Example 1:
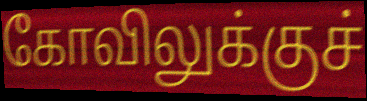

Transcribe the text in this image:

கோவிலுக்குச்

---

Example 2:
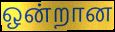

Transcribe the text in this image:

ஒன்றான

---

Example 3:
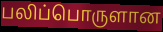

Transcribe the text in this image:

பலிப்பொருளான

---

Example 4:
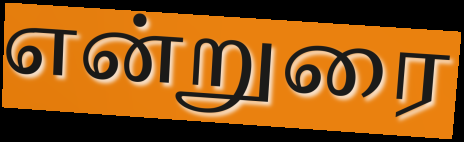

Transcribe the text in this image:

என்றுரை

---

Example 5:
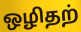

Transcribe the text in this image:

ஒழிதற்